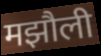
मझौली